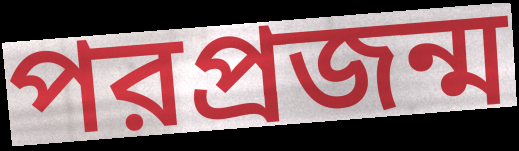
পরপ্রজন্ম